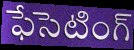
ఫేసెటింగ్